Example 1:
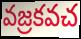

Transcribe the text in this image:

వజ్రకవచ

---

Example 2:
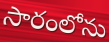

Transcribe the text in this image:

సారంలోను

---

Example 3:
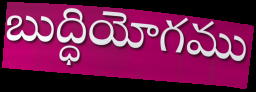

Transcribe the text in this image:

బుద్ధియోగము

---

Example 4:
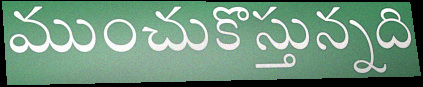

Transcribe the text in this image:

ముంచుకొస్తున్నది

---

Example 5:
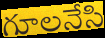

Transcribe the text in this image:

గూలనేసి